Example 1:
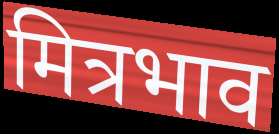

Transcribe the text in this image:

मित्रभाव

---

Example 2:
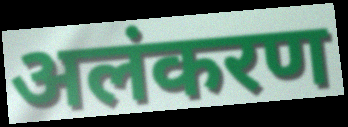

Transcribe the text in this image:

अलंकरण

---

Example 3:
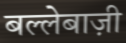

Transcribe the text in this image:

बल्लेबाज़ी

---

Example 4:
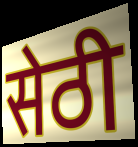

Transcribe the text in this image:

सेठी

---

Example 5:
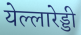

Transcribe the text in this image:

येल्लारेड्डी